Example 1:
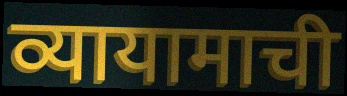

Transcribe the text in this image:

व्यायामाची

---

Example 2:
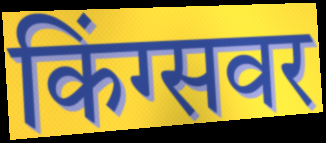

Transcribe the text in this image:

किंग्सवर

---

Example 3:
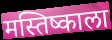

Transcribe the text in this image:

मस्तिष्काला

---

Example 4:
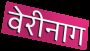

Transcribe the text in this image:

वेरीनाग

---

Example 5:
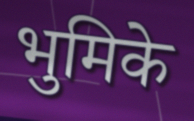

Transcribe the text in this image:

भुमिके